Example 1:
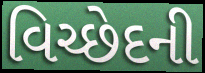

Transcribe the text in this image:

વિચ્છેદની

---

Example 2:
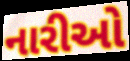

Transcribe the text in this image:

નારીઓ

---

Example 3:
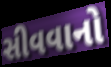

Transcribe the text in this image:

સીવવાનો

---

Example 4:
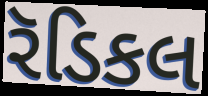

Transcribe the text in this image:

રૅડિકલ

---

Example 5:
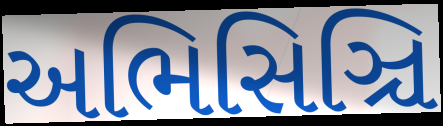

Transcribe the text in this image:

અભિસિઞ્ચિ